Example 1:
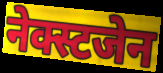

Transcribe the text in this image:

नेक्स्टजेन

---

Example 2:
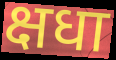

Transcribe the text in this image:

क्षधा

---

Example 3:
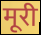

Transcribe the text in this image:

मूरी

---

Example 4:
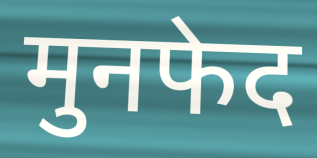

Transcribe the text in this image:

मुनफेद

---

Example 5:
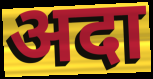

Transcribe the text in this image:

अदा